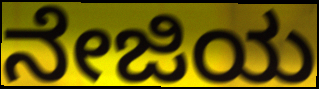
ನೇಜಿಯ